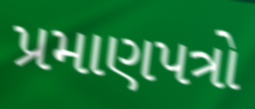
પ્રમાણપત્રો